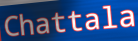
Chattala